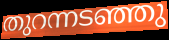
തുറന്നടഞ്ഞു